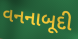
વનનાબૂદી